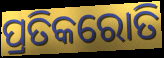
ପ୍ରତିକରୋତି